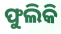
ଫୁଲିକି